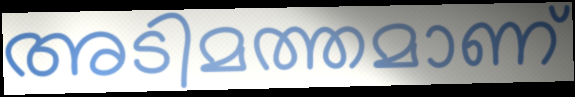
അടിമത്തമാണ്